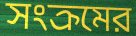
সংক্রমের